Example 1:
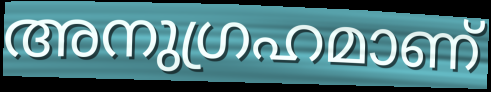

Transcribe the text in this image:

അനുഗ്രഹമാണ്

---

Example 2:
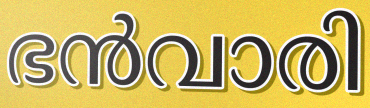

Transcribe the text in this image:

ഭൻവാരി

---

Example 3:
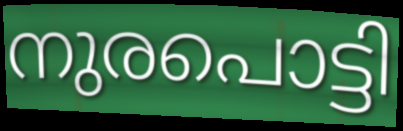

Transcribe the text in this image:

നുരപൊട്ടി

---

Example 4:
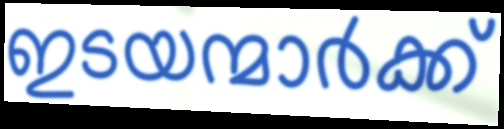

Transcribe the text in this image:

ഇടയന്മാർക്ക്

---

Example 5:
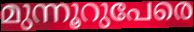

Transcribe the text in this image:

മുന്നൂറുപേരെ